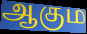
ஆகும